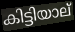
കിട്ടിയാല്